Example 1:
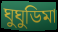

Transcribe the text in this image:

ঘুঘুডিমা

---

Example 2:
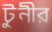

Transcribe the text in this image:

টুনীর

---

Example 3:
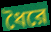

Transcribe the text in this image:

ধৈরে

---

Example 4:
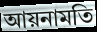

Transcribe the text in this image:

আয়নামতি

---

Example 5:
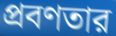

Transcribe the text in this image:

প্রবণতার